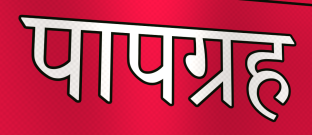
पापग्रह